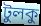
টুলকু